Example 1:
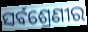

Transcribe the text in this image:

ସର୍ବଶ୍ରେଣୀର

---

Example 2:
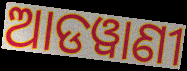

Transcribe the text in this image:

ଆଡୱାଣୀ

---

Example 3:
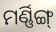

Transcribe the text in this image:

ମର୍ଣ୍ଣିଙ୍ଗ୍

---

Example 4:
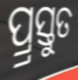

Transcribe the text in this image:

ପ୍ର୍ରସ୍ତୁତ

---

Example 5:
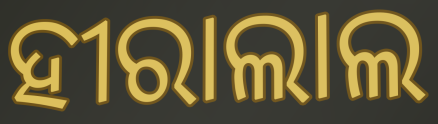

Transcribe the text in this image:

ହୀରାଲାଲ